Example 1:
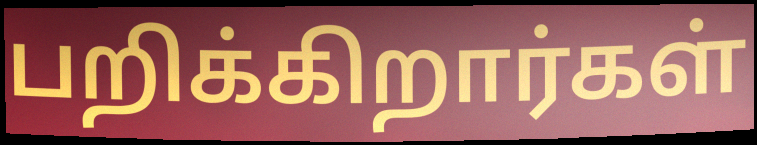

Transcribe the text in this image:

பறிக்கிறார்கள்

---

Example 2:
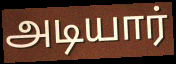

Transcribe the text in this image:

அடியார்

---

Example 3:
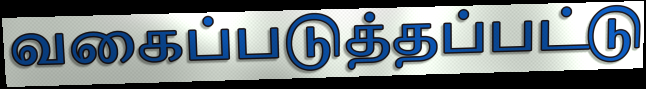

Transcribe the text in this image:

வகைப்படுத்தப்பட்டு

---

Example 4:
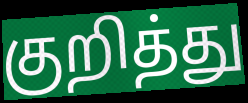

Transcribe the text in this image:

குறித்து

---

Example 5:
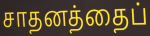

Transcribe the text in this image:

சாதனத்தைப்